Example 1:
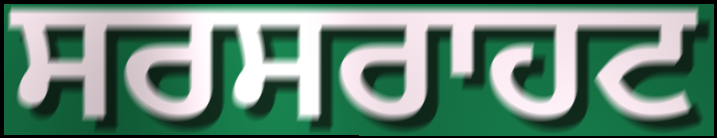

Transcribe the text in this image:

ਸਰਸਰਾਹਟ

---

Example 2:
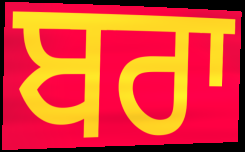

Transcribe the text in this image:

ਬਰਾ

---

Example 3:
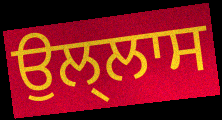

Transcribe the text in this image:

ਉਲ੍ਲਾਸ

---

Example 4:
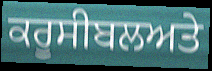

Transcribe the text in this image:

ਕਰੂਸੀਬਲਅਤੇ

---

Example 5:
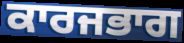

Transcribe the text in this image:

ਕਾਰਜਭਾਗ